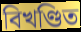
বিখণ্ডিত